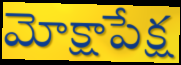
మోక్షాపేక్ష